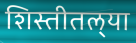
शिस्तीतल्या